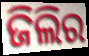
ଜିଲିର